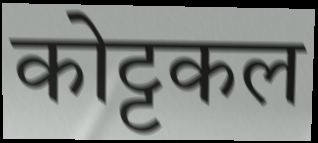
कोट्टकल